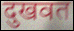
दुखवत